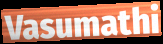
Vasumathi